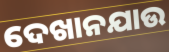
ଦେଖାନଯାଉ